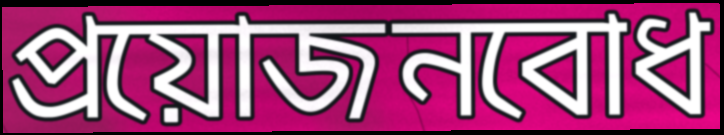
প্রয়োজনবোধ